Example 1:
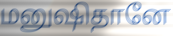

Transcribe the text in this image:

மனுஷிதானே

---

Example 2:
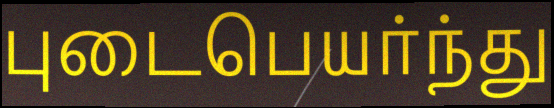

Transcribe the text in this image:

புடைபெயர்ந்து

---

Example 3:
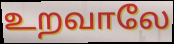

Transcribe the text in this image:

உறவாலே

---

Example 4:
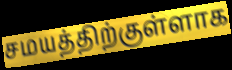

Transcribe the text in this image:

சமயத்திற்குள்ளாக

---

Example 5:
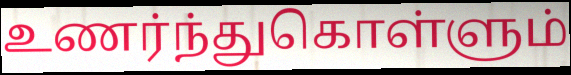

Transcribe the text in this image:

உணர்ந்துகொள்ளும்